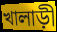
খালাড়ী